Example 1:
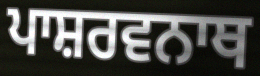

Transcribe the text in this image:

ਪਾਸ਼ਰਵਨਾਥ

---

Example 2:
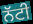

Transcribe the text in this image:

ਨੱਟੀ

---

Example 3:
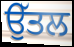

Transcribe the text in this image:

ਉੱਤਲ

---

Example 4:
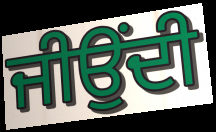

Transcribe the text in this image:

ਜੀਉਂਦੀ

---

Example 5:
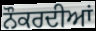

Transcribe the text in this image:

ਨੌਕਰਦੀਆਂ